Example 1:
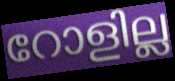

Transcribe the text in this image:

റോളില്ല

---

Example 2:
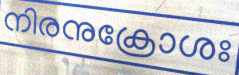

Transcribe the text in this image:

നിരനുക്രോശഃ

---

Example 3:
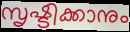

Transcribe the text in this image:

സൃഷ്ടിക്കാനും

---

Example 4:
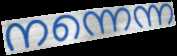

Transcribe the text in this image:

നന്നെന്ന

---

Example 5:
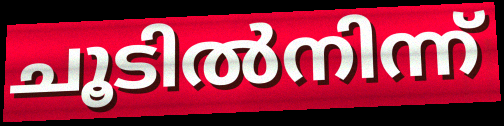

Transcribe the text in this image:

ചൂടിൽനിന്ന്